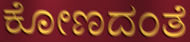
ಕೋಣದಂತೆ